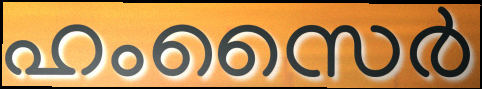
ഹംസൈർ